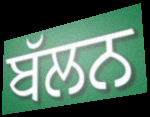
ਬੱਲਨ